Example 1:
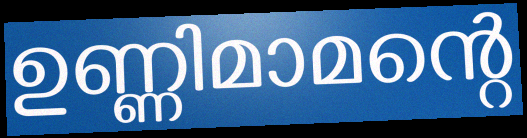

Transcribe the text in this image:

ഉണ്ണിമാമന്റെ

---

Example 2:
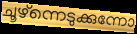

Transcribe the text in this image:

ചൂഴ്ന്നെടുക്കുന്നോ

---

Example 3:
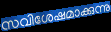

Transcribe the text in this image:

സവിശേഷമാക്കുന്നു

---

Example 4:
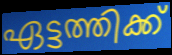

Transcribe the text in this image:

ഏട്ടത്തിക്ക്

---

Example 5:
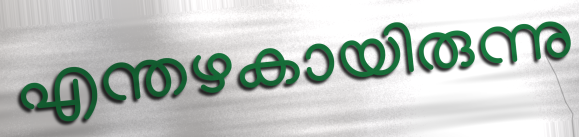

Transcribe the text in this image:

എന്തഴകായിരുന്നു